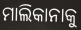
ମାଲିକାନାକୁ